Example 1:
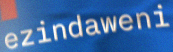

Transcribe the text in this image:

ezindaweni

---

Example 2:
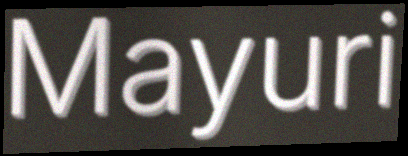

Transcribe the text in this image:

Mayuri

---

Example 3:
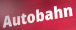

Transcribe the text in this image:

Autobahn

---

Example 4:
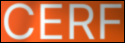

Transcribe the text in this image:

CERF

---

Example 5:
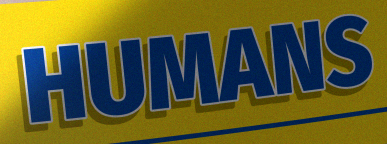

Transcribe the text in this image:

HUMANS